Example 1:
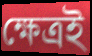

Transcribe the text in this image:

ক্ষেত্রই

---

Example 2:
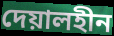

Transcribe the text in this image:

দেয়ালহীন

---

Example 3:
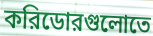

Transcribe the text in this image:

করিডোরগুলোতে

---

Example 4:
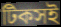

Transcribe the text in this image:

টিকসই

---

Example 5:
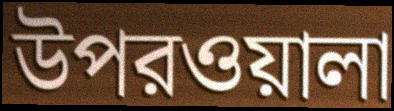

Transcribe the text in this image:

উপরওয়ালা